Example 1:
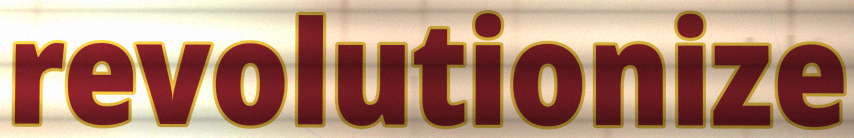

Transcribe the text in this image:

revolutionize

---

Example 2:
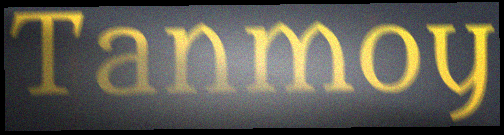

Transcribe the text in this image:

Tanmoy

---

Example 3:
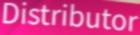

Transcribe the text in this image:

Distributor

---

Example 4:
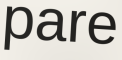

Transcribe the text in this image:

pare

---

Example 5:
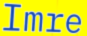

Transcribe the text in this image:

Imre